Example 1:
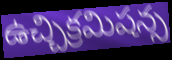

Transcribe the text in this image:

ఉచ్చిక్రమిషన్స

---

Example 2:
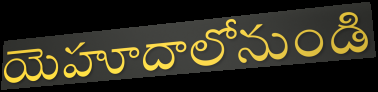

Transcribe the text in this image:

యెహూదాలోనుండి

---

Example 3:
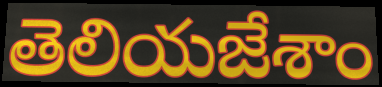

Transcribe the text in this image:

తెలియజేశాం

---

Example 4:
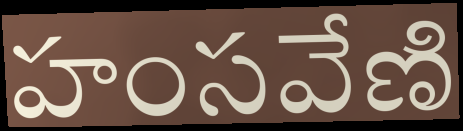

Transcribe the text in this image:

హంసవేణి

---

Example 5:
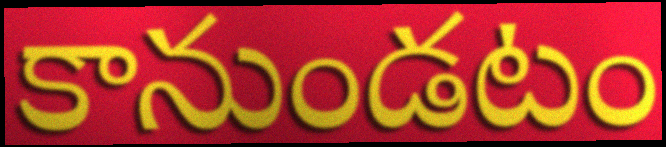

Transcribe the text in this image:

కానుండటం